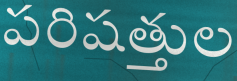
పరిషత్తుల